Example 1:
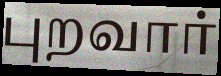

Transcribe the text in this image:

புறவார்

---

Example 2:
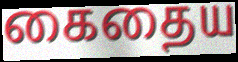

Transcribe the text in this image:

கைதைய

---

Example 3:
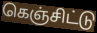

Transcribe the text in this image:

கெஞ்சிட்டு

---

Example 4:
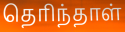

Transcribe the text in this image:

தெரிந்தாள்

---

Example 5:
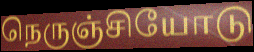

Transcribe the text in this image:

நெருஞ்சியோடு